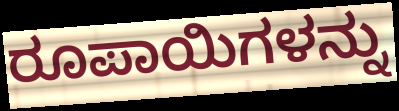
ರೂಪಾಯಿಗಳನ್ನು